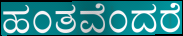
ಹಂತವೆಂದರೆ